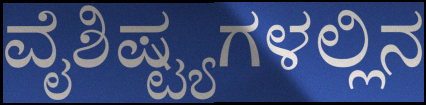
ವೈಶಿಷ್ಟ್ಯಗಳಲ್ಲಿನ